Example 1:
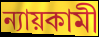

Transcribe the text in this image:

ন্যায়কামী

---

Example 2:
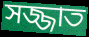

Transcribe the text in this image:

সজ্জাত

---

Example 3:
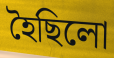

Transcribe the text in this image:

হৈছিলো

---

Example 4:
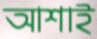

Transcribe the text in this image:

আশাই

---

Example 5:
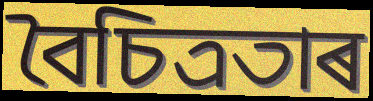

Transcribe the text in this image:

বৈচিত্ৰতাৰ